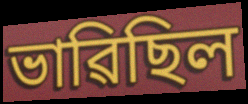
ভাৱিছিল